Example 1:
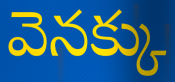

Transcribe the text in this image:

వెనక్కు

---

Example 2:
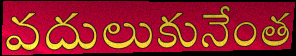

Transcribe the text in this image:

వదులుకునేంత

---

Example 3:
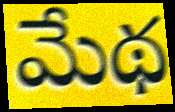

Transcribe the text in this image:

మేథ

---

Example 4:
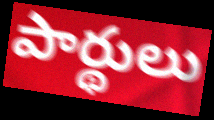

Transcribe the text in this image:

పార్థులు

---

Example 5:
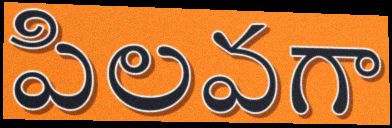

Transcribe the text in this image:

పిలవగా